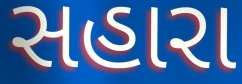
સહારા